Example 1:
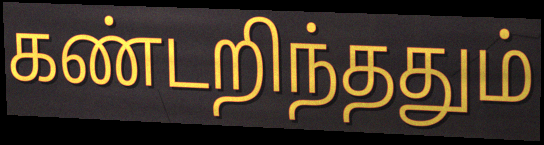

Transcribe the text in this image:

கண்டறிந்ததும்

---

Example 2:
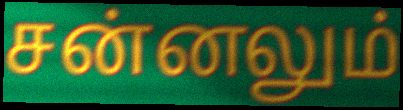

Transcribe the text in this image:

சன்னலும்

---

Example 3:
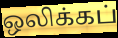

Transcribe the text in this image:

ஒலிக்கப்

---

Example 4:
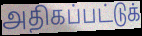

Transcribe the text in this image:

அதிகப்பட்டுக்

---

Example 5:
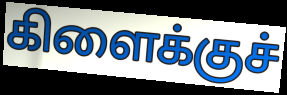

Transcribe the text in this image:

கிளைக்குச்